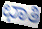
ಛಾತಿ